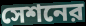
সেশনের